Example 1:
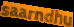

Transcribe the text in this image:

saarndhu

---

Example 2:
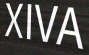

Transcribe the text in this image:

XIVA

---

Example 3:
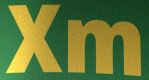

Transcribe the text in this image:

Xm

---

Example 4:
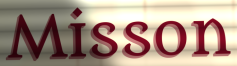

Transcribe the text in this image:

Misson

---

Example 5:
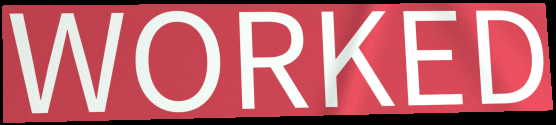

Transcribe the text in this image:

WORKED